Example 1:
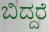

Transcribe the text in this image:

ಬಿದ್ದರೆ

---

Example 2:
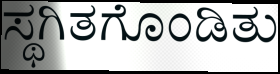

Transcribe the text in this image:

ಸ್ಥಗಿತಗೊಂಡಿತು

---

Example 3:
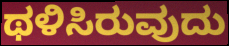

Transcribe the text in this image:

ಥಳಿಸಿರುವುದು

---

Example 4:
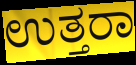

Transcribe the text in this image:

ಉತ್ತರಾ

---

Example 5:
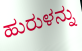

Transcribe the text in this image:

ಹುರುಳನ್ನು